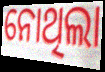
ନୋଥିଲା